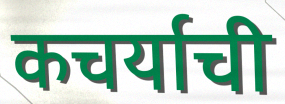
कचर्याची